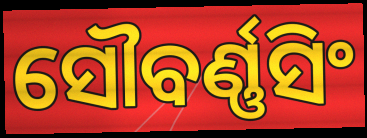
ସୌବର୍ଣ୍ଣସିଂ